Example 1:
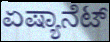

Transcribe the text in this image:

ಏಷ್ಯಾನೆಟ್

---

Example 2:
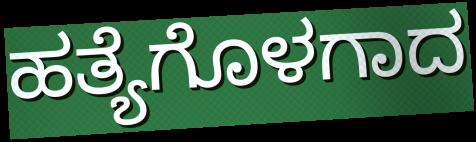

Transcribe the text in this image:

ಹತ್ಯೆಗೊಳಗಾದ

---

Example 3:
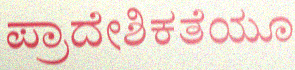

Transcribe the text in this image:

ಪ್ರಾದೇಶಿಕತೆಯೂ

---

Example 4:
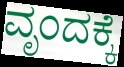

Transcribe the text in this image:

ವೃಂದಕ್ಕೆ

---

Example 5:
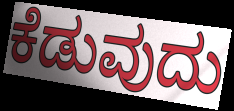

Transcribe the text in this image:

ಕೆಡುವುದು